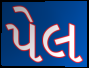
પેલ